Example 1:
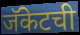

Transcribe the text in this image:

जॅकेटची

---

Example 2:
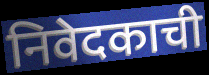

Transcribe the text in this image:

निवेदकाची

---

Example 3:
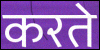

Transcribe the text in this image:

करते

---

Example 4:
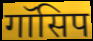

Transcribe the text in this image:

गॉसिप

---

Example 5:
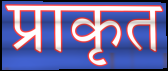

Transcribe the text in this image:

प्राकृत